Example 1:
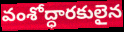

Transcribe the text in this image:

వంశోద్ధారకులైన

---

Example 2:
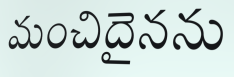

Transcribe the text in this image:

మంచిదైనను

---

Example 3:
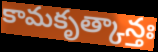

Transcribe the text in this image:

కామకృత్కాన్తః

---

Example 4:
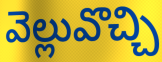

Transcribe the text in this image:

వెల్లువొచ్చి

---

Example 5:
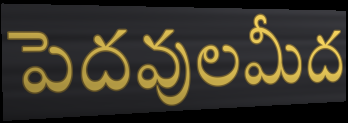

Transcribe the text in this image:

పెదవులమీద